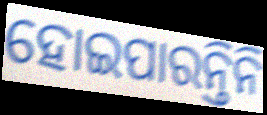
ହୋଇପାରନ୍ତିନି